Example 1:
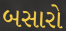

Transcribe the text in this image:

બસારો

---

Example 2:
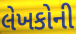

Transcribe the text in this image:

લેખકોની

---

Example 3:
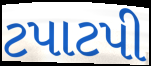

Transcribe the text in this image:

ટપાટપી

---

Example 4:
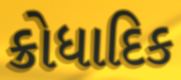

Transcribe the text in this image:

ક્રોધાદિક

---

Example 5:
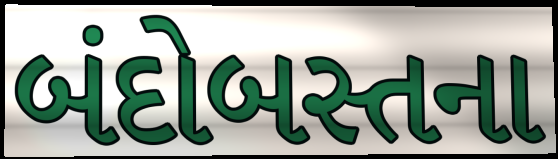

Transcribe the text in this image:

બંદોબસ્તના